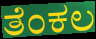
ತೆಂಕಲ